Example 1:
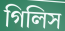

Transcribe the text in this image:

গিলিস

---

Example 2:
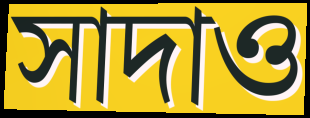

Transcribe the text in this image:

সাদাও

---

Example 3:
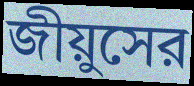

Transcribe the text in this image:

জীয়ুসের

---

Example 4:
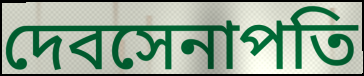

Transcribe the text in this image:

দেবসেনাপতি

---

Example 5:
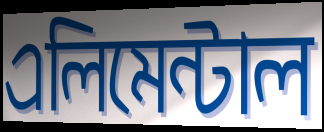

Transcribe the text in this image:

এলিমেন্টাল